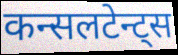
कन्सलटेन्ट्स